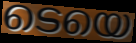
ടെയെ